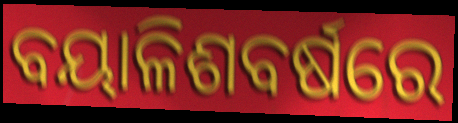
ବୟାଳିଶବର୍ଷରେ